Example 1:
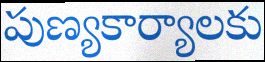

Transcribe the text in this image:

పుణ్యకార్యాలకు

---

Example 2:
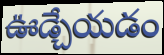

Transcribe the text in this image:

ఊడ్చేయడం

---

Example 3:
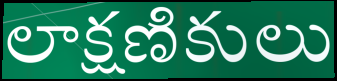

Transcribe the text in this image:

లాక్షణికులు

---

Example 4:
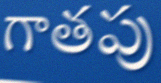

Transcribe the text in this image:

గాతపు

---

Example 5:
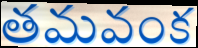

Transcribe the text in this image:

తమవంక